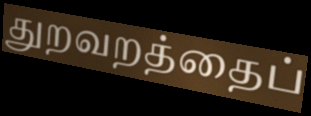
துறவறத்தைப்